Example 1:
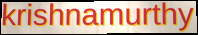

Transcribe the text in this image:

krishnamurthy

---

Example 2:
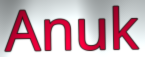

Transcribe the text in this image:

Anuk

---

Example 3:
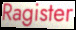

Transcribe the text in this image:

Ragister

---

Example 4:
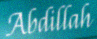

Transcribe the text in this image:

Abdillah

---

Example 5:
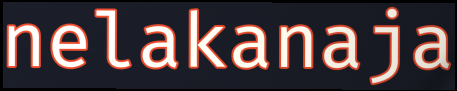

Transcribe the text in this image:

nelakanaja